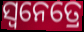
ସ୍ୱନେତ୍ରେ